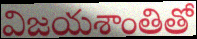
విజయశాంతితో